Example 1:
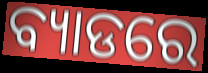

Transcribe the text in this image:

ବ୍ୟାଡରେ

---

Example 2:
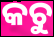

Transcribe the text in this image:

କଚୁ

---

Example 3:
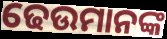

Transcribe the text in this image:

ଢେଉମାନଙ୍କ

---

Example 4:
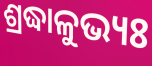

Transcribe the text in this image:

ଶ୍ରଦ୍ଧାଳୁଭ୍ୟଃ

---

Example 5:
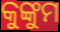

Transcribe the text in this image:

କୁଙ୍କୁମ